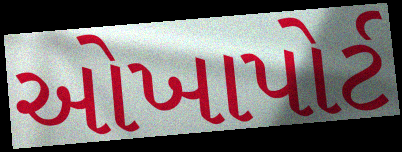
ઓખાપોર્ટ